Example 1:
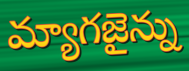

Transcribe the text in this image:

మ్యాగజైన్ను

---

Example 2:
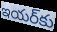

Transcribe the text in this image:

ఇయర్‌కు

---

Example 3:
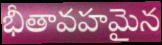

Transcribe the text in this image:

భీతావహమైన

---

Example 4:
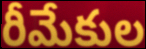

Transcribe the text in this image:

రీమేకుల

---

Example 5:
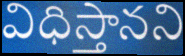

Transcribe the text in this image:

విధిస్తానని